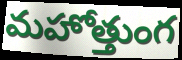
మహోత్తుంగ